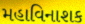
મહાવિનાશક